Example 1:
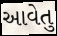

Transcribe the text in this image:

આવેતુ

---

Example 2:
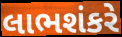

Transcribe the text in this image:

લાભશંકરે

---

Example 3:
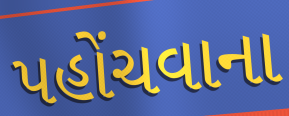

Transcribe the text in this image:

પહોંચવાના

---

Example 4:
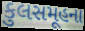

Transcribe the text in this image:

કુલસમૂહના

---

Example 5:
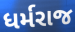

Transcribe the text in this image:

ધર્મરાજ